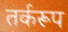
तर्करूप